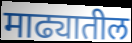
माढ्यातील